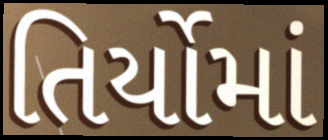
તિર્યોમાં